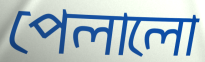
পেলালো